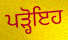
ਪੜ੍ਹੋਇਹ